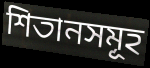
শিতানসমূহ